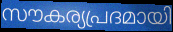
സൗകര്യപ്രദമായി